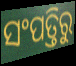
ସଂପତ୍ତିରୁ